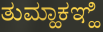
ತುಮ್ಹಾಕಞ್ಹಿ